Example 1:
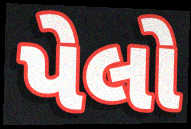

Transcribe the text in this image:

પેલો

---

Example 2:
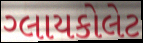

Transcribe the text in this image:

ગ્લાયકોલેટ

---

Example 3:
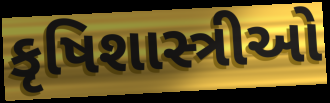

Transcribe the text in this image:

કૃષિશાસ્ત્રીઓ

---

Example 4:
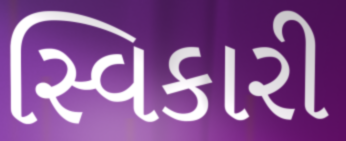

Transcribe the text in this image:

સ્વિકારી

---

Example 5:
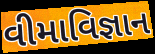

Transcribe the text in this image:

વીમાવિજ્ઞાન